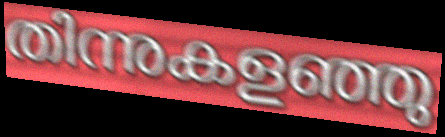
തിന്നുകളഞ്ഞു